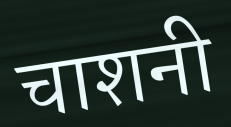
चाशनी